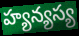
హ్యన్యస్య